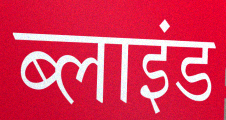
ब्लाइंड